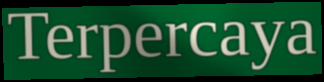
Terpercaya